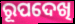
ରୂପଦେଖି